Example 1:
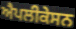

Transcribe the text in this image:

ਐਪਲੀਕੇਸਨ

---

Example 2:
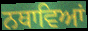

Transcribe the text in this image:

ਨਥਾਵਿਆਂ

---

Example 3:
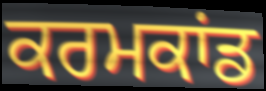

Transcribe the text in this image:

ਕਰਮਕਾਂਡ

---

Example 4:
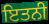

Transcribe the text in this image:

ਇਤਨੀ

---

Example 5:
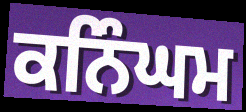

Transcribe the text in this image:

ਕਨਿੰਘਮ